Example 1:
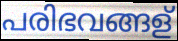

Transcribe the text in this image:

പരിഭവങ്ങള്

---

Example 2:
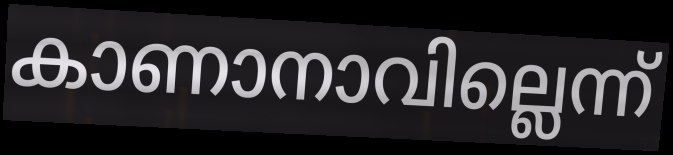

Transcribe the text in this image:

കാണാനാവില്ലെന്ന്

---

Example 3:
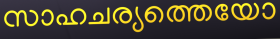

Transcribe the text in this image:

സാഹചര്യത്തെയോ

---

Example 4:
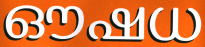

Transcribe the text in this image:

ഔഷധ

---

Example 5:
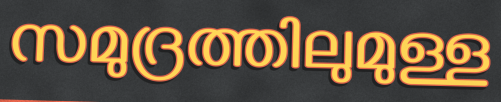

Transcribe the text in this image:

സമുദ്രത്തിലുമുള്ള